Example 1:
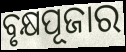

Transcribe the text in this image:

ବୃକ୍ଷପୂଜାର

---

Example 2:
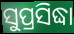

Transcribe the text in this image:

ସୁପ୍ରସିଦ୍ଧା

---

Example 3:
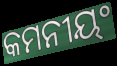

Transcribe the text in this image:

କମନୀୟଂ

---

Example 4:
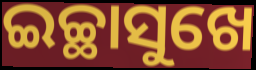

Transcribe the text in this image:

ଇଚ୍ଛାସୁଖେ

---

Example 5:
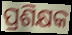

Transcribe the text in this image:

ପ୍ରଶିକ୍ଷକ